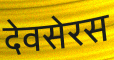
देवसेरस